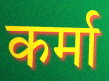
कर्मा